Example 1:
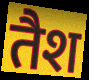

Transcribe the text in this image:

तैश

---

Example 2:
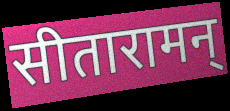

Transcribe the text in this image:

सीतारामन्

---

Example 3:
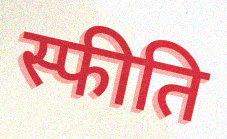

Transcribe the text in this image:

स्फीति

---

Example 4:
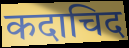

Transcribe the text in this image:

कदाचिद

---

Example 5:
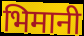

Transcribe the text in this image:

भिमानी